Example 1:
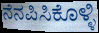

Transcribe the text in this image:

ನೆನಪಿಸಿಕೊಳ್ಳಿ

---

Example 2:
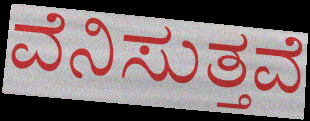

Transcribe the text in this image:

ವೆನಿಸುತ್ತವೆ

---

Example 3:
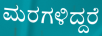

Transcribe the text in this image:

ಮರಗಳಿದ್ದರೆ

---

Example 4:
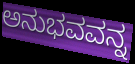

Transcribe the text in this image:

ಅನುಭವವನ್ನ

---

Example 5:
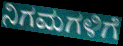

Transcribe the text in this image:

ನಿಗಮಗಳಿಗೆ